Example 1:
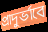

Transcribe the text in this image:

প্রাদুর্ভাবে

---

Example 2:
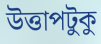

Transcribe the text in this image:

উত্তাপটুকু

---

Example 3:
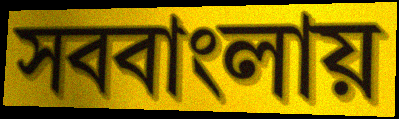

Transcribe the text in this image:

সববাংলায়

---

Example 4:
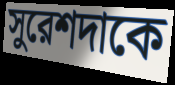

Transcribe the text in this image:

সুরেশদাকে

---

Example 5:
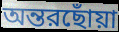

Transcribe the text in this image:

অন্তরছোঁয়া